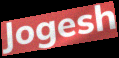
Jogesh